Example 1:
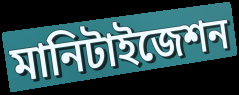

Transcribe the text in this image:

মানিটাইজেশন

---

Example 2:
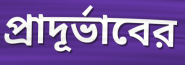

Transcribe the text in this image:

প্রাদূর্ভাবের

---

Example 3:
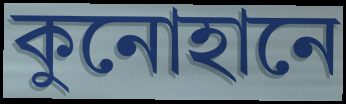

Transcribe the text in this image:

কুনোহানে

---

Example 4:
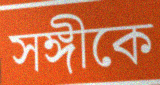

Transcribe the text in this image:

সঙ্গীকে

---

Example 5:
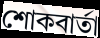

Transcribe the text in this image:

শোকবার্তা